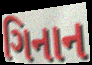
ગિનાન